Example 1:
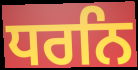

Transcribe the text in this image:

ਧਰਨਿ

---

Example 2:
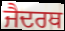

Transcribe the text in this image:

ਜੈਦਰਥ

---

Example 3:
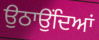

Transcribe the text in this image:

ਉਠਾਉਂਦਿਆਂ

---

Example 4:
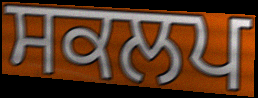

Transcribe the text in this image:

ਸਕਲਪ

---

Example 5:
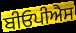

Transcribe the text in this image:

ਬੀਓਪੀਐਸ